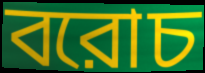
বরোচ